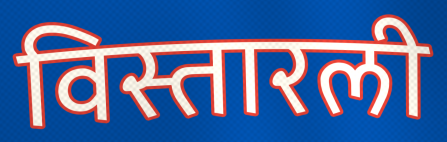
विस्तारली